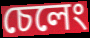
চেলেং